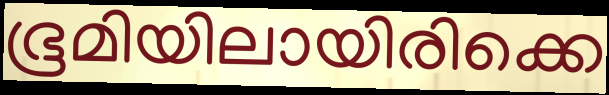
ഭൂമിയിലായിരിക്കെ